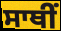
ਸਾਥੀਂ